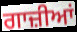
ਗਾਜ਼ੀਆਂ